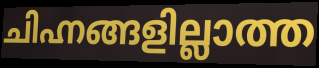
ചിഹ്നങ്ങളില്ലാത്ത